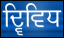
ਦ੍ਵਿਵਿਧ